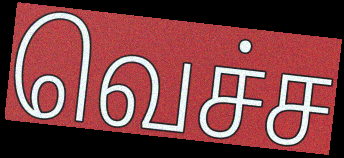
வெச்ச